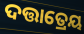
ଦତ୍ତାତ୍ରେୟ